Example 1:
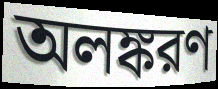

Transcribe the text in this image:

অলঙ্করণ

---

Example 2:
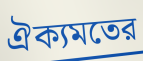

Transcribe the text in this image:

ঐক্যমতের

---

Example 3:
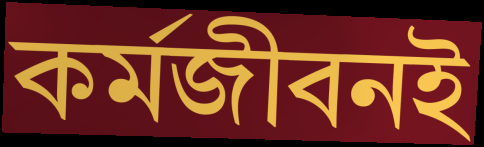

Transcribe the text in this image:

কর্মজীবনই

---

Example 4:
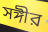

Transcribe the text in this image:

সঙ্গীর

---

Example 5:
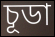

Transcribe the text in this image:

চূডা